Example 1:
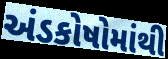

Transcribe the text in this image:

અંડકોષોમાંથી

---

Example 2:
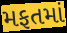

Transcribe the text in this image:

મફતમાં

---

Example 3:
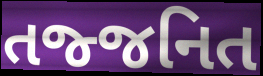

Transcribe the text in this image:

તજ્જનિત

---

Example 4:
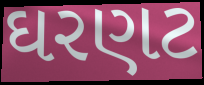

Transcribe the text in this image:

ઘરણટ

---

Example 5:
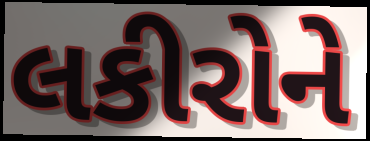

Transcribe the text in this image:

લકીરોને